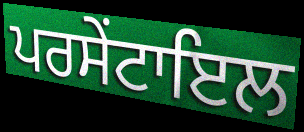
ਪਰਸੇਂਟਾਇਲ